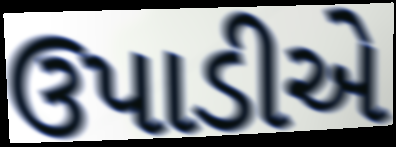
ઉપાડીએ